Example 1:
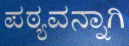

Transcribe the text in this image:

ಪಠ್ಯವನ್ನಾಗಿ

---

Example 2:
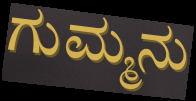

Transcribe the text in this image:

ಗುಮ್ಮನು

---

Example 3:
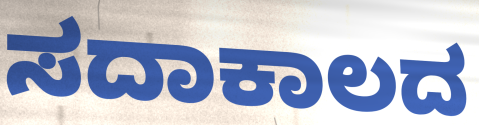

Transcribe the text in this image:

ಸದಾಕಾಲದ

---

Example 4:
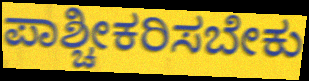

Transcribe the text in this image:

ಪಾಶ್ಚೀಕರಿಸಬೇಕು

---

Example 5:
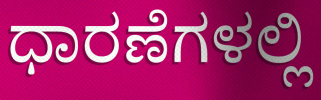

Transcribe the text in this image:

ಧಾರಣೆಗಳಲ್ಲಿ